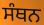
ਸੰਥਨ